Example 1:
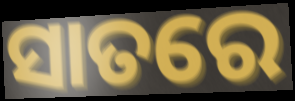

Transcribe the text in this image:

ସାତରେ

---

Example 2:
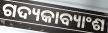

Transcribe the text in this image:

ଗଦ୍ୟକାବ୍ୟାଂଶ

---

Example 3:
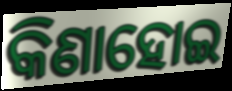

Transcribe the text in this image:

କିଣାହୋଇ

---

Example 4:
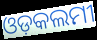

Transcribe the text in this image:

ଓଡ଼କଲମୀ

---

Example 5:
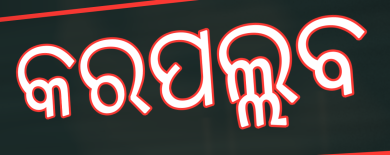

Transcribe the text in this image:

କରପଲ୍ଲବ